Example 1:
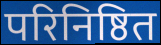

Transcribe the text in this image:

परिनिष्ठित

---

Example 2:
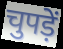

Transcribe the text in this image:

चुपड़ें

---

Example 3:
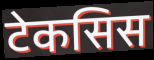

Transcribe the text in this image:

टेकसिस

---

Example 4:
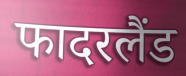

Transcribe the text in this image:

फादरलैंड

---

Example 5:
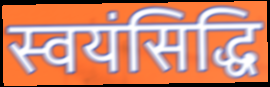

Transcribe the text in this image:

स्वयंसिद्धि